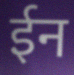
ईन